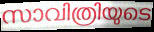
സാവിത്രിയുടെ